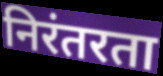
निरंतरता